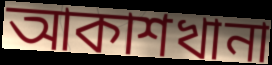
আকাশখানা